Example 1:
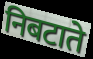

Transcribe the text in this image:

निबटाते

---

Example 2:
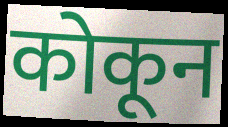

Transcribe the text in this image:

कोकून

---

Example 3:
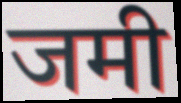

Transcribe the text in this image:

जमी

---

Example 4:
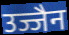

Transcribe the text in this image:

उज्जैन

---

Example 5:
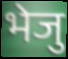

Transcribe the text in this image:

भेजु